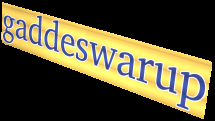
gaddeswarup